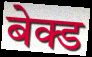
बेक्ड